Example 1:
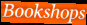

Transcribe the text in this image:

Bookshops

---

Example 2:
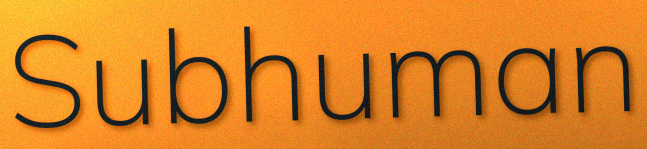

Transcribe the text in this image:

Subhuman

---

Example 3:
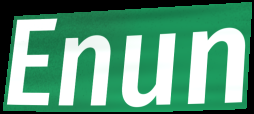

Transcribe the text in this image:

Enun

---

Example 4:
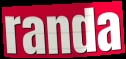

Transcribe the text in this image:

randa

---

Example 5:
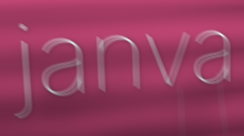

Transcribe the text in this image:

janva